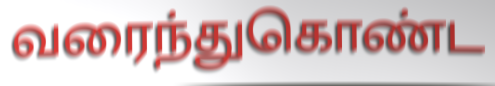
வரைந்துகொண்ட